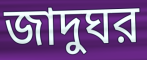
জাদুঘর